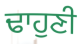
ਢਾਹੁਣੀ